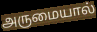
அருமையால்